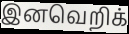
இனவெறிக்